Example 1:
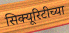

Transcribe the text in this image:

सिक्यूरिटीच्या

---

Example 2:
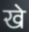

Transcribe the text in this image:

खे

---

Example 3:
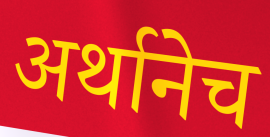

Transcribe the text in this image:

अर्थानेच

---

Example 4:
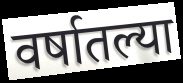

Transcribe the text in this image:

वर्षातल्या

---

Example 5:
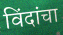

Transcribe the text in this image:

विंदांचा